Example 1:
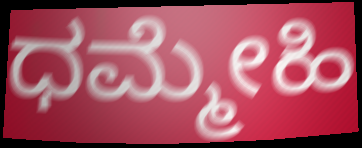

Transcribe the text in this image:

ಧಮ್ಮೇಹಿ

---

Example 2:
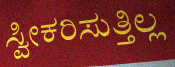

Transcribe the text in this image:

ಸ್ವೀಕರಿಸುತ್ತಿಲ್ಲ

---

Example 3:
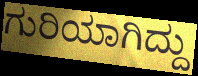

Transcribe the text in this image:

ಗುರಿಯಾಗಿದ್ದು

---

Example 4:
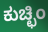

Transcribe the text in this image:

ಕುಚ್ಛಿಂ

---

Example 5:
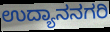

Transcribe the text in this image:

ಉದ್ಯಾನನಗರಿ